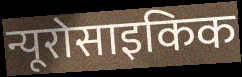
न्यूरोसाइकिक